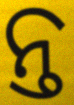
ନ୍ତ